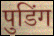
पुडिंग